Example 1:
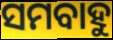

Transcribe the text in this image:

ସମବାହୁ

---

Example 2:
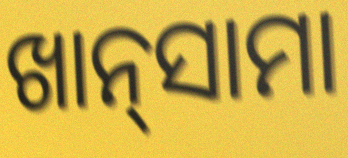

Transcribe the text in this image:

ଖାନ୍‌ସାମା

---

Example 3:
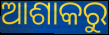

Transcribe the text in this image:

ଆଶାକରୁ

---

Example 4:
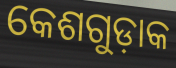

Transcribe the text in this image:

କେଶଗୁଡ଼ାକ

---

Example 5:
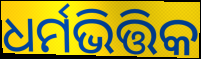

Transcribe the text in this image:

ଧର୍ମଭିତ୍ତିକ